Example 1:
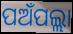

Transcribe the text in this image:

ପଅଁପଲ୍ଲା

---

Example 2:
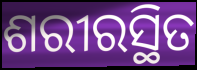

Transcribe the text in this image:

ଶରୀରସ୍ଥିତ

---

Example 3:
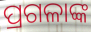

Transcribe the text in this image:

ପ୍ରଗଳାଙ୍କ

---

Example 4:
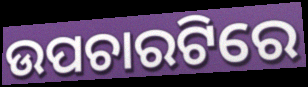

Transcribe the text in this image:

ଉପଚାରଟିରେ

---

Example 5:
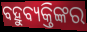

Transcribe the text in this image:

ବହୁବ୍ୟକ୍ତିଙ୍କର